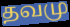
தவமு